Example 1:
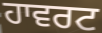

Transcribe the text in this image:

ਹਾਵਰਟ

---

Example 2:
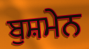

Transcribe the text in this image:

ਬੁਸ਼ਮੇਨ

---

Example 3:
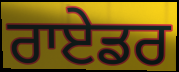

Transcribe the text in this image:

ਰਾਏਡਰ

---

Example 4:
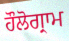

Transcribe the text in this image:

ਹੌਲੋਗ੍ਰਾਮ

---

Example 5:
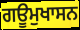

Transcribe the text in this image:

ਗਊਮੁਖਾਸਨ